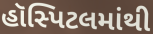
હૉસ્પિટલમાંથી